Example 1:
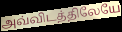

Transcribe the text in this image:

அவ்விடத்திலேயே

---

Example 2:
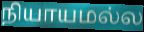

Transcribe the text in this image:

நியாயமல்ல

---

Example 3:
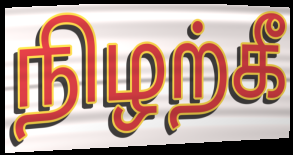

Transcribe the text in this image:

நிழற்கீ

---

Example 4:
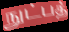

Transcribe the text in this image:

நுட்பத்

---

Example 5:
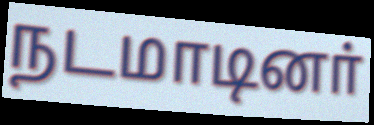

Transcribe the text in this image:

நடமாடினர்